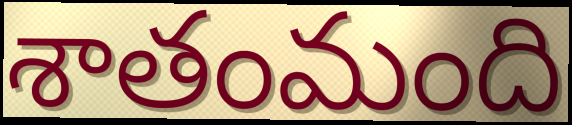
శాతంమంది